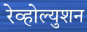
रेव्होल्युशन